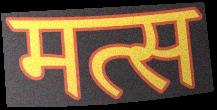
मत्स